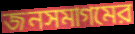
জনসমাগমের